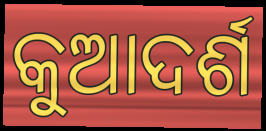
କୁଆଦର୍ଶ